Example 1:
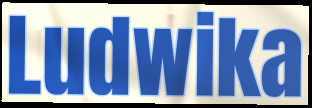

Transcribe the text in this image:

Ludwika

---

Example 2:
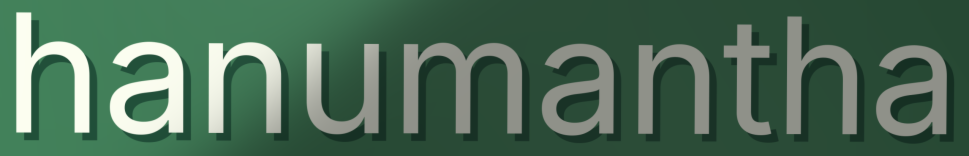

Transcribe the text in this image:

hanumantha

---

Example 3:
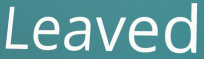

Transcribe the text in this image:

Leaved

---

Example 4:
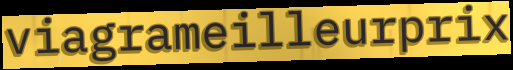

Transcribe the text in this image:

viagrameilleurprix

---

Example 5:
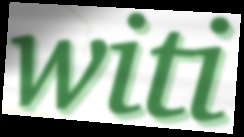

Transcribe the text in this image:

witi